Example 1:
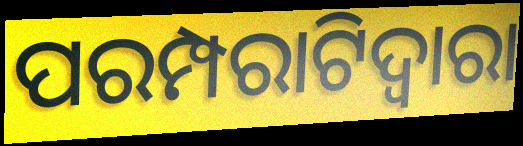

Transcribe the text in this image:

ପରମ୍ପରାଟିଦ୍ୱାରା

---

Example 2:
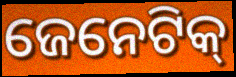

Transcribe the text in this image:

ଜେନେଟିକ୍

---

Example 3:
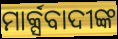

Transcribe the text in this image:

ମାର୍କ୍ସବାଦୀଙ୍କ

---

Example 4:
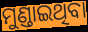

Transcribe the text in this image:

ମୁଣ୍ଡାଇଥିବା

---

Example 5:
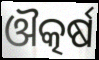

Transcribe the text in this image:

ଔତ୍କର୍ଷ